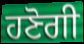
ਹਣੋਗੀ